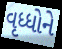
વૃધ્ધોને